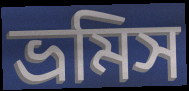
ভ্রমিস